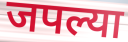
जपल्या